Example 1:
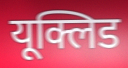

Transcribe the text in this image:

यूक्लिड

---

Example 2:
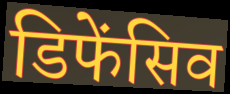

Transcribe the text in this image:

डिफेंसिव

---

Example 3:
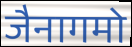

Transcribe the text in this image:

जैनागमो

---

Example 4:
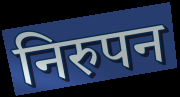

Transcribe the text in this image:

निरुपन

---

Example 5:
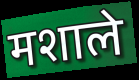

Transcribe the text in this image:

मशाले